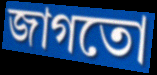
জাগতো